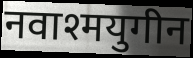
नवाश्मयुगीन